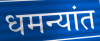
धमन्यांत